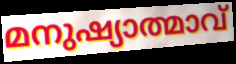
മനുഷ്യാത്മാവ്